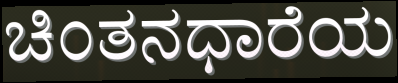
ಚಿಂತನಧಾರೆಯ